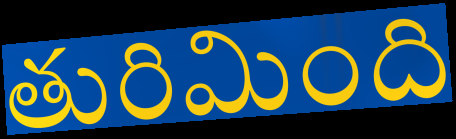
తురిమింది